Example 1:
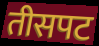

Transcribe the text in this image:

तीसपट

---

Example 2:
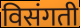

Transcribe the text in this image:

विसंगती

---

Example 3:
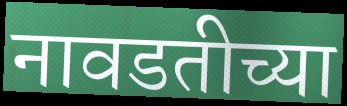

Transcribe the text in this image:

नावडतीच्या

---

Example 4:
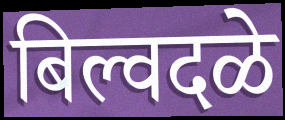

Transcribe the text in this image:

बिल्वदळे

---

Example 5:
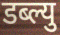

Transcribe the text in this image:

डब्ल्यु